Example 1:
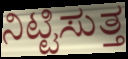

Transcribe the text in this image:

ನಿಟ್ಟಿಸುತ್ತ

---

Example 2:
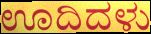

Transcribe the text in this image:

ಊದಿದಳು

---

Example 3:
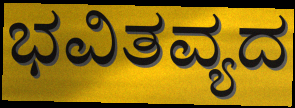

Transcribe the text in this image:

ಭವಿತವ್ಯದ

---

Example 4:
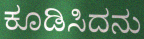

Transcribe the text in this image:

ಕೂಡಿಸಿದನು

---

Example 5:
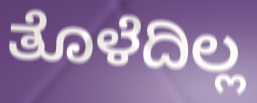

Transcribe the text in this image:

ತೊಳೆದಿಲ್ಲ